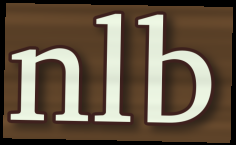
nlb